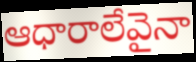
ఆధారాలేవైనా